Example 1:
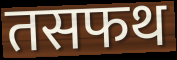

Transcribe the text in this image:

तसफथ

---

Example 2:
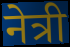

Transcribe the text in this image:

नेत्री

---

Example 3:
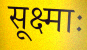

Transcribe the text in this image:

सूक्ष्माः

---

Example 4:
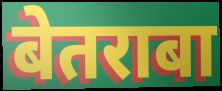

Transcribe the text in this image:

बेतराबा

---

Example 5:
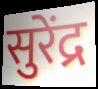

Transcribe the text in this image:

सुरेंद्र